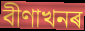
বীণাখনৰ